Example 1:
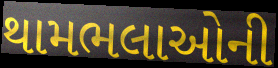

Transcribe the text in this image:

થામભલાઓની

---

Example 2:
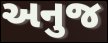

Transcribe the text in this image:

અનુજ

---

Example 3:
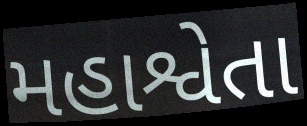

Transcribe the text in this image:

મહાશ્વેતા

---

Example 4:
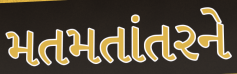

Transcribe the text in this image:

મતમતાંતરને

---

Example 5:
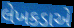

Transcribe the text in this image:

લેખકડાએ